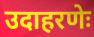
उदाहरणेः